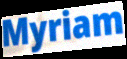
Myriam